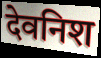
देवनिश